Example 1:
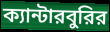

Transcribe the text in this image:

ক্যান্টারবুরির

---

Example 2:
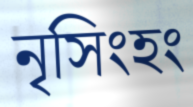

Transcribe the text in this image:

নৃসিংহং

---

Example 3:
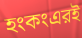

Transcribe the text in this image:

হংকংএরই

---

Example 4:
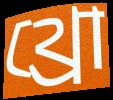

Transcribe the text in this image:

থ্রো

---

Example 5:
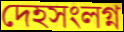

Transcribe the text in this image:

দেহসংলগ্ন